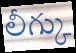
లీగ్కు